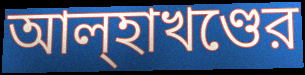
আল্হাখণ্ডের